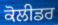
ਕੋਲੀਡਰ